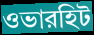
ওভারহিট